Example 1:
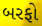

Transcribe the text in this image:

બરફો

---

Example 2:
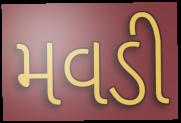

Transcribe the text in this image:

મવડી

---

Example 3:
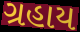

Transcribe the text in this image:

ગ્રહાય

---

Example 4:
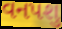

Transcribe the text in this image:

વનપશુ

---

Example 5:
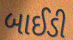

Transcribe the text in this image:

બાઈડી